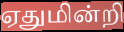
ஏதுமின்றி